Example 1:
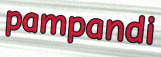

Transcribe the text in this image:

pampandi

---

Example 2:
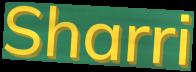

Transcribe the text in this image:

Sharri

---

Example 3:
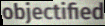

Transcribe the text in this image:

objectified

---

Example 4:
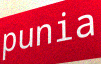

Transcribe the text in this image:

punia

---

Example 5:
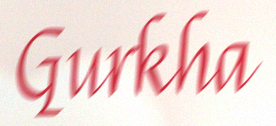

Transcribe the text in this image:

Gurkha